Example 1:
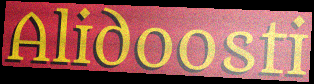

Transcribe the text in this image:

Alidoosti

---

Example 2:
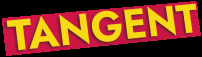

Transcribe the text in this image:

TANGENT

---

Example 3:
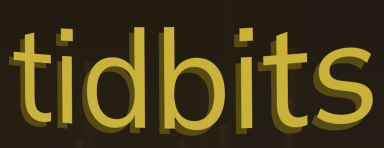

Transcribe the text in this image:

tidbits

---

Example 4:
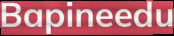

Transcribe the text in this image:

Bapineedu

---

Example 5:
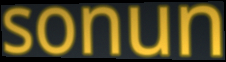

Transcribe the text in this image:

sonun